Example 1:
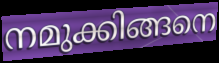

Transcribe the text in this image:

നമുക്കിങ്ങനെ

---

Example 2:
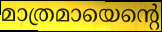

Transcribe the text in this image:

മാത്രമായെന്റെ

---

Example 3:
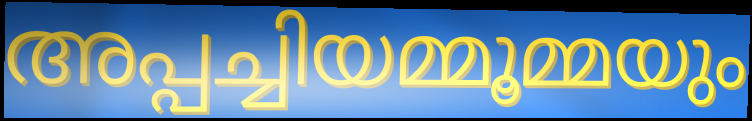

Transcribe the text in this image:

അപ്പച്ചിയമ്മൂമ്മയും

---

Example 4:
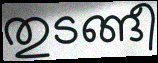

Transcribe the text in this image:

തുടങ്ങീ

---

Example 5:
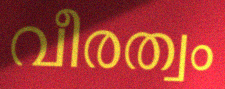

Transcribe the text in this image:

വീരത്വം